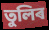
তুলিৰ